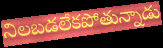
నిలబడలేకపోతున్నాడు